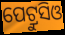
ପେଟ୍ରୁସିଓ